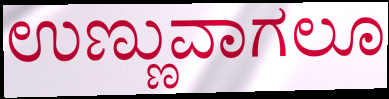
ಉಣ್ಣುವಾಗಲೂ